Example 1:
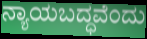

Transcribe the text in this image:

ನ್ಯಾಯಬದ್ಧವೆಂದು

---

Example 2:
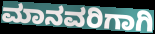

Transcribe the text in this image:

ಮಾನವರಿಗಾಗಿ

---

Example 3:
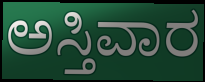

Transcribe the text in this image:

ಅಸ್ತಿವಾರ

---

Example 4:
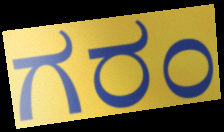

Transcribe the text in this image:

ಗರಂ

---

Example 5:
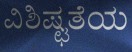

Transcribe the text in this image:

ವಿಶಿಷ್ಟತೆಯ